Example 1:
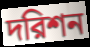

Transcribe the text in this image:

দরিশন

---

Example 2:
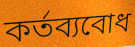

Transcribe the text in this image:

কর্তব্যবোধ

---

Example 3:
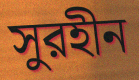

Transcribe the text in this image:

সুরহীন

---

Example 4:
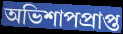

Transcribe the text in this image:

অভিশাপপ্রাপ্ত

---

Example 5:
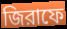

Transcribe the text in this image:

জিরাফে